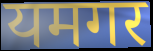
यमगर